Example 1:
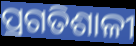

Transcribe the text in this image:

ପ୍ରଗତିଶାଳୀ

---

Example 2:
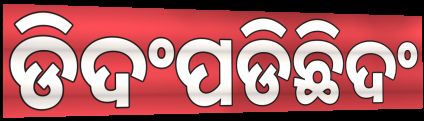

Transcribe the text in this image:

ଡିଦଂପଡିଛିଦଂ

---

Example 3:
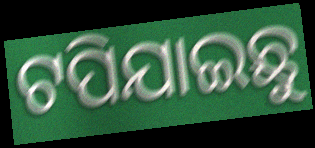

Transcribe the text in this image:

ଟପିଯାଇଛୁ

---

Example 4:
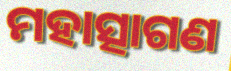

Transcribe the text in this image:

ମହାତ୍ସାଗଣ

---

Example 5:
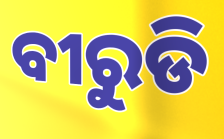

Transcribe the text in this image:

ବୀରୁଡି